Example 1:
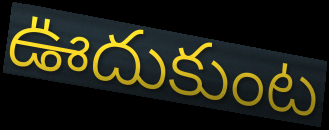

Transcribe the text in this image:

ఊదుకుంట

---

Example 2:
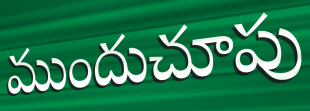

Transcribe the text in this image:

ముందుచూపు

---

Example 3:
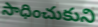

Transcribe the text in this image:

సాధించుకుని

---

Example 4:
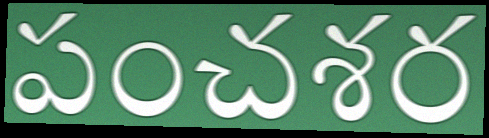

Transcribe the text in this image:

పంచశర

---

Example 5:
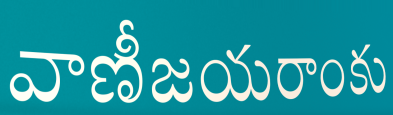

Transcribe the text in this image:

వాణీజయరాంకు